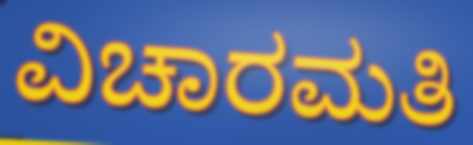
ವಿಚಾರಮತಿ